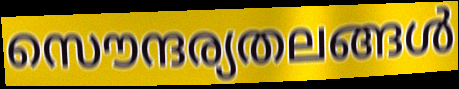
സൌന്ദര്യതലങ്ങൾ